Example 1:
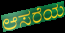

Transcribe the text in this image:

ಆಸರೆಯ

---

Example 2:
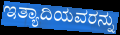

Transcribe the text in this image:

ಇತ್ಯಾದಿಯವರನ್ನು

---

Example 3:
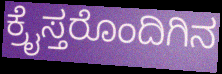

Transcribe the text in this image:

ಕ್ರೈಸ್ತರೊಂದಿಗಿನ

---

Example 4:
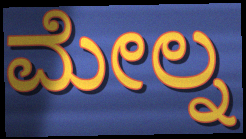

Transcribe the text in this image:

ಮೇಲ್ನ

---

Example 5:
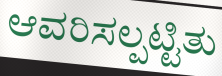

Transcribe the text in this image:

ಆವರಿಸಲ್ಪಟ್ಟಿತು